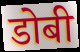
डोबी